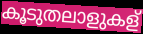
കൂടുതലാളുകള്